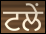
ਟਲੇਂ